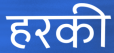
हरकी